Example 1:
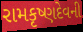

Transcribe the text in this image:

રામકૃષ્ણદેવની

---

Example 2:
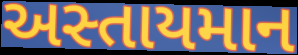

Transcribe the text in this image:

અસ્તાયમાન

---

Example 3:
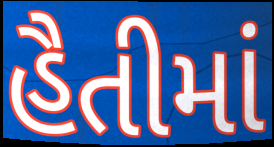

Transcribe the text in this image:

હૈતીમાં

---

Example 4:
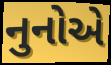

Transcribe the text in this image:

નુનોએ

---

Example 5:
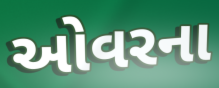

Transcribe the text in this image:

ઓવરના